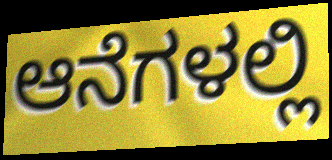
ಆನೆಗಳಲ್ಲಿ